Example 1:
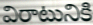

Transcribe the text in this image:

విరాటునికి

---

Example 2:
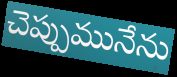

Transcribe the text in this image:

చెప్పుమునేను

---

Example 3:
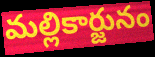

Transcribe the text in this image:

మల్లికార్జునం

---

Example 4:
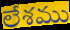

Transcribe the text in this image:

లేశము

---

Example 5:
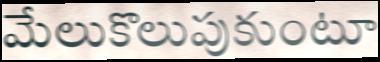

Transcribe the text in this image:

మేలుకొలుపుకుంటూ